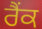
ਰੈੰਕ